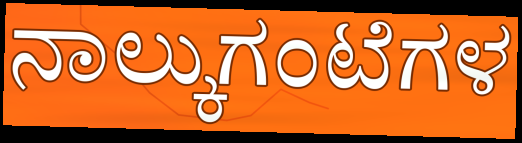
ನಾಲ್ಕುಗಂಟೆಗಳ